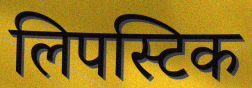
लिपस्टिक